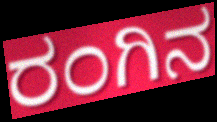
ರಂಗಿನ